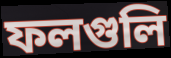
ফলগুলি